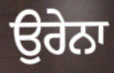
ਉਰੇਨਾ